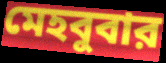
মেহবুবার